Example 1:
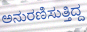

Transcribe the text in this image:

ಅನುರಣಿಸುತ್ತಿದ್ದ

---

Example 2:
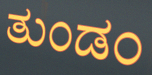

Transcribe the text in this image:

ತುಂಡಂ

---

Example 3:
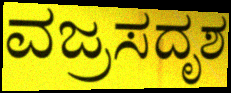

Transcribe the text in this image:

ವಜ್ರಸದೃಶ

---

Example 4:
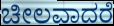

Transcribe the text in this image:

ಚೀಲವಾದರೆ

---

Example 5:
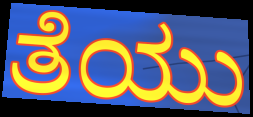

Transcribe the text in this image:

ತೆಯು